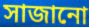
সাজানো